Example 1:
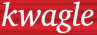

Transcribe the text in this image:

kwagle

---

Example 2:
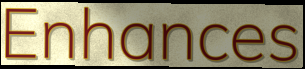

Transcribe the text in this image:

Enhances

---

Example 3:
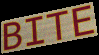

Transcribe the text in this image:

BITE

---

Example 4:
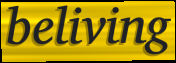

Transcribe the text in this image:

beliving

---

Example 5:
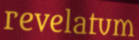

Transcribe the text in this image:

revelatum